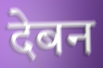
देबन